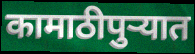
कामाठीपुर्‍यात